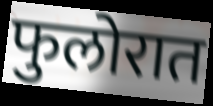
फुलोरात